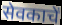
सेवकाचें